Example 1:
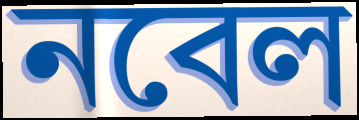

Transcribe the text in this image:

নবেল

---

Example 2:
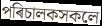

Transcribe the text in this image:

পৰিচালকসকলে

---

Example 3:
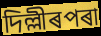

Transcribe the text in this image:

দিল্লীৰপৰা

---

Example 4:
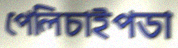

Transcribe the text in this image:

পেলিচাইপডা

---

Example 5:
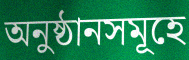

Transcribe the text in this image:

অনুষ্ঠানসমূহে